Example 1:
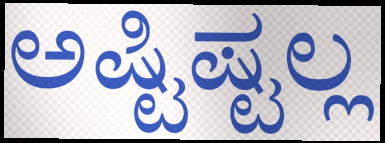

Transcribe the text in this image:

ಅಷ್ಟಿಷ್ಟಲ್ಲ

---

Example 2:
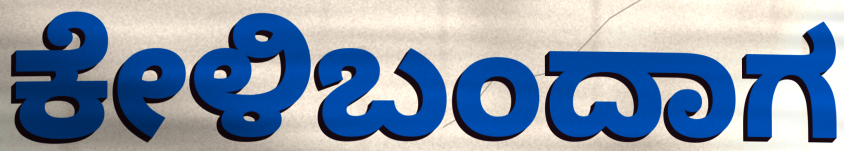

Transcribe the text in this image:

ಕೇಳಿಬಂದಾಗ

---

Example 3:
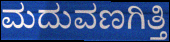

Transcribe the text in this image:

ಮದುವಣಗಿತ್ತಿ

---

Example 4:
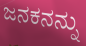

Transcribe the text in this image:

ಜನಕನನ್ನು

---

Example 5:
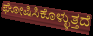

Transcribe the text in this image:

ಘೋಷಿಸಿಕೊಳ್ಳುತ್ತದೆ